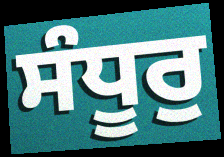
ਸੰਧੂਰੁ